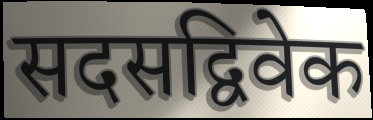
सदसद्विवेक